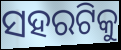
ସହରଟିକୁ